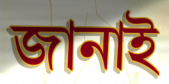
জানাই